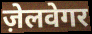
ज़ेलवेगर